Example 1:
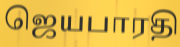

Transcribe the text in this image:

ஜெயபாரதி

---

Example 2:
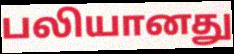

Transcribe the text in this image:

பலியானது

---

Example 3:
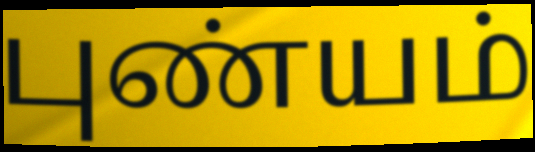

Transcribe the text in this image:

புண்யம்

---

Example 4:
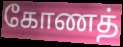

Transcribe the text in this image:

கோணத்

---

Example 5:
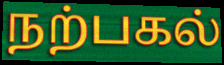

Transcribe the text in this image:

நற்பகல்